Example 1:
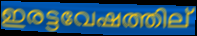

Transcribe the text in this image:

ഇരട്ടവേഷത്തില്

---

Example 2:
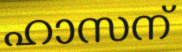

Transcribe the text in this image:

ഹാസന്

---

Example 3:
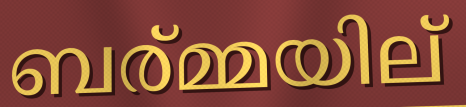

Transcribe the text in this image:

ബര്മ്മയില്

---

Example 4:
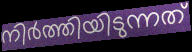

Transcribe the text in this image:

നിർത്തിയിടുന്നത്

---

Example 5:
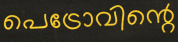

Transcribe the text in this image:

പെട്രോവിന്റെ